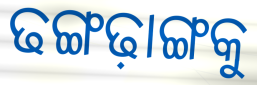
ଢଙ୍ଗଢ଼ାଙ୍ଗକୁ